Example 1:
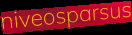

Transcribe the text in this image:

niveosparsus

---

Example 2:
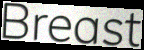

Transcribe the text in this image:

Breast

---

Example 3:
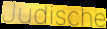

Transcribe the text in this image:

Judische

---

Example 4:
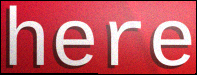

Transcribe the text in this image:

here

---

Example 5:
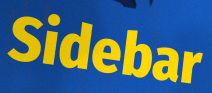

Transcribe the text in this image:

Sidebar